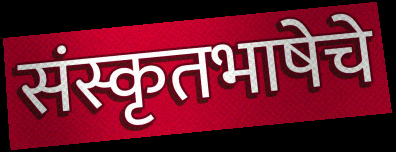
संस्कृतभाषेचे